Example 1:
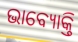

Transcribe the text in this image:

ଭାବ୍ୟୋକ୍ତି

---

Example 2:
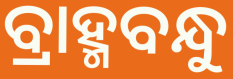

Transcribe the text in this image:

ବ୍ରାହ୍ମବନ୍ଧୁ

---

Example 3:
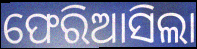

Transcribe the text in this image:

ଫେରିଆସିଲା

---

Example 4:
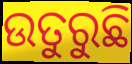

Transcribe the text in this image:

ଉତୁରୁଛି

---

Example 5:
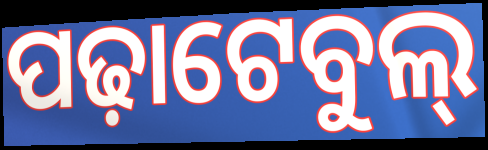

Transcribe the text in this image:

ପଢ଼ାଟେବୁଲ୍